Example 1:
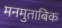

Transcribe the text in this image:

मनमुताबिक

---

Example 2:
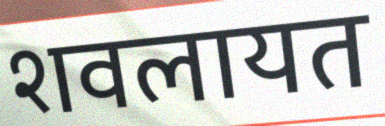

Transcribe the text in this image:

शवलायत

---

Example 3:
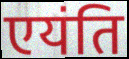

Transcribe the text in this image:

एयंति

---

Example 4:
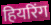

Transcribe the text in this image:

हियरिंग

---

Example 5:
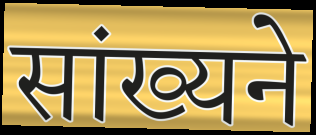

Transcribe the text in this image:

सांख्यने